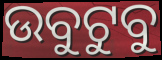
ଉବୁଟୁବୁ